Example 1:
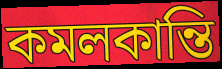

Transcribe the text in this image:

কমলকান্তি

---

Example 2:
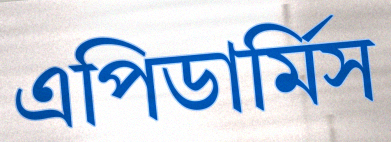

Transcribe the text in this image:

এপিডার্মিস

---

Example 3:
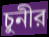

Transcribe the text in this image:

চুনীর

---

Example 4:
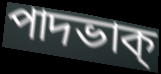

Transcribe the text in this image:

পাদভাক্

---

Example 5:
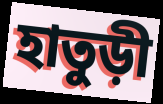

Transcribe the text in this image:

হাতুড়ী